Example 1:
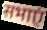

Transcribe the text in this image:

सभाएं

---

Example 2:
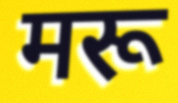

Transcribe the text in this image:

मरू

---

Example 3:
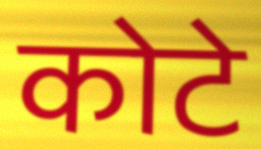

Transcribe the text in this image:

कोटे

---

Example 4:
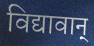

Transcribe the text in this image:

विद्यावान्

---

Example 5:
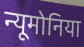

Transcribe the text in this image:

न्यूमोनिया